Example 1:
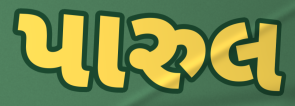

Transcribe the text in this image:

પારુલ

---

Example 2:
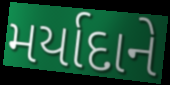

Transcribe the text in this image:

મર્યાદાને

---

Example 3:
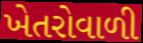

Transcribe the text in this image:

ખેતરોવાળી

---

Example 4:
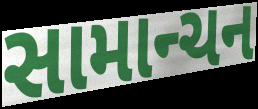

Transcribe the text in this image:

સામાન્ચન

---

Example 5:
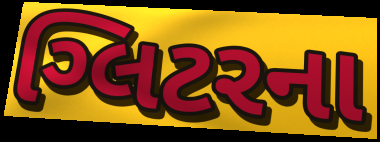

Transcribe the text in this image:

ગ્લિટરના